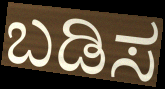
ಬಡಿಸ